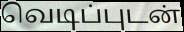
வெடிப்புடன்